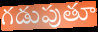
గడుపుతూ